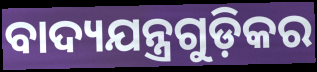
ବାଦ୍ୟଯନ୍ତ୍ରଗୁଡ଼ିକର